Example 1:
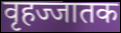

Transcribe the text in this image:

वृहज्जातक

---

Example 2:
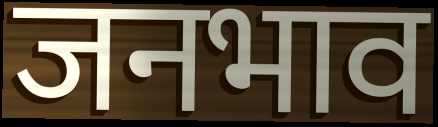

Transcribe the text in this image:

जनभाव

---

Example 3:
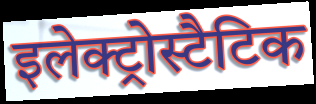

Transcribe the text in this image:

इलेक्ट्रोस्टैटिक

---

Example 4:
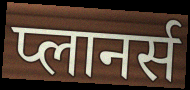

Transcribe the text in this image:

प्लानर्स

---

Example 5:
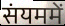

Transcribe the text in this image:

संयममें